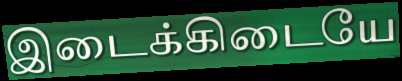
இடைக்கிடையே